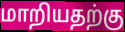
மாறியதற்கு